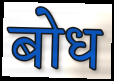
बोध